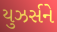
યુઝર્સને